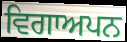
ਵਿਗਾਅਪਨ